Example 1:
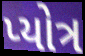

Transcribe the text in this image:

પ્યોત્ર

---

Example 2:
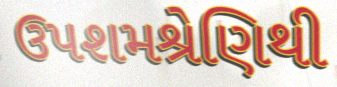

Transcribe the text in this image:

ઉપશમશ્રેણિથી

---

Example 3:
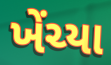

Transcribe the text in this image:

ખેંચ્યા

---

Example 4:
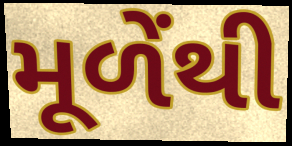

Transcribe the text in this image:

મૂળેંથી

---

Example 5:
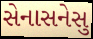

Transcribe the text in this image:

સેનાસનેસુ